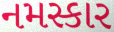
નમસ્કાર